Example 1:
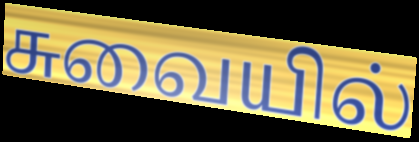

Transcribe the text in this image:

சுவையில்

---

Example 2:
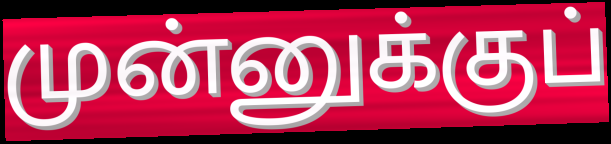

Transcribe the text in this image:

முன்னுக்குப்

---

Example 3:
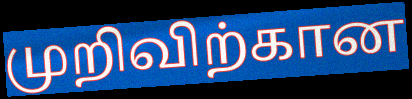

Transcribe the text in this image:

முறிவிற்கான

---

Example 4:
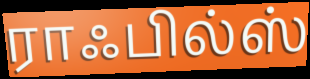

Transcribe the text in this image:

ராஃபில்ஸ்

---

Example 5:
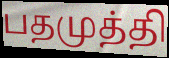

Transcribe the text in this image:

பதமுத்தி